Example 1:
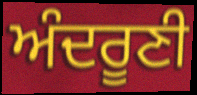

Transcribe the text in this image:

ਅੰਦਰੂਣੀ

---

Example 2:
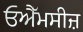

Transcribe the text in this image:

ਓਐੱਮਸੀਜ਼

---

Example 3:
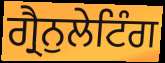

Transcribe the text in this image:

ਗ੍ਰੈਨੁਲੇਟਿੰਗ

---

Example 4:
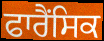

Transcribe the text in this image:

ਫਾਰੈਂਸਿਕ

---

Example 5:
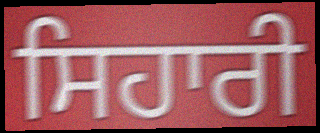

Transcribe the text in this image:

ਸਿਹਾਰੀ